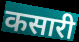
कसारी